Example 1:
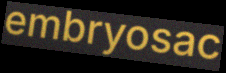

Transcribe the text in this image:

embryosac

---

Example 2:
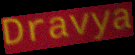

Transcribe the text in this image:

Dravya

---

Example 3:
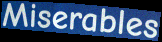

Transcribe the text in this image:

Miserables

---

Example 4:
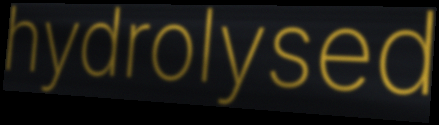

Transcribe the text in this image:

hydrolysed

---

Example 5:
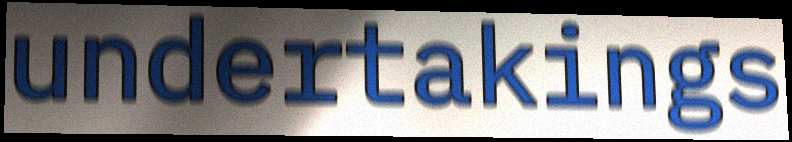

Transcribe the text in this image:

undertakings